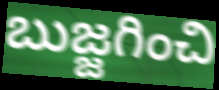
బుజ్జగించి